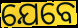
ଯେବେ